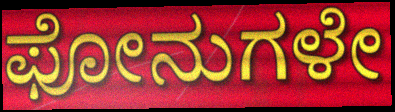
ಫೋನುಗಳೇ